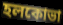
হলকোভা